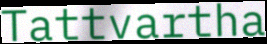
Tattvartha